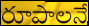
రూపాలనే